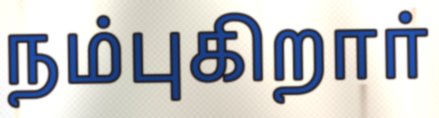
நம்புகிறார்